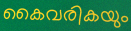
കൈവരികയും